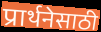
प्रार्थनेसाठी